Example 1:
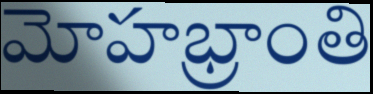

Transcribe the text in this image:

మోహభ్రాంతి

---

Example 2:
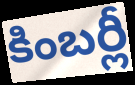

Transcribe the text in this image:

కింబర్లీ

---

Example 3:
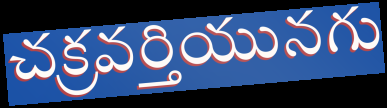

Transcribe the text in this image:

చక్రవర్తియునగు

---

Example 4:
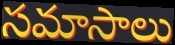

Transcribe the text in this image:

సమాసాలు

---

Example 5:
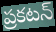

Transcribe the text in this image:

ప్రకటన్